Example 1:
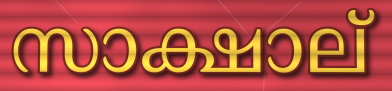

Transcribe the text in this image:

സാക്ഷാല്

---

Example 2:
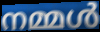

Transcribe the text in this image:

നമ്മൾ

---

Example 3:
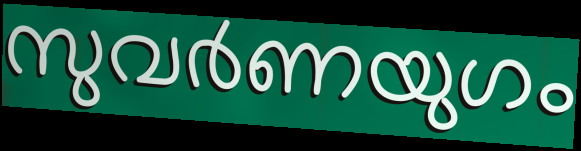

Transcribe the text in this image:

സുവർണയുഗം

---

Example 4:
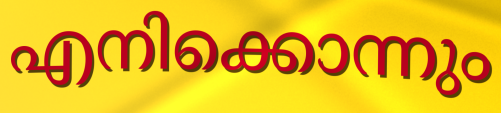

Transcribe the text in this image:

എനിക്കൊന്നും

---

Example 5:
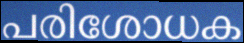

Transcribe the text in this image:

പരിശോധക